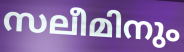
സലീമിനും